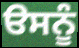
ੳਸਨੂੰ